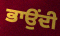
ਭਾਉਂਦੀ